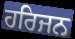
ਹਰਿਜਨ